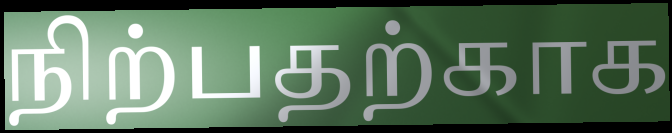
நிற்பதற்காக